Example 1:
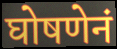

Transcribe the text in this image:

घोषणेनं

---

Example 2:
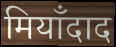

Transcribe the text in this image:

मियाँदाद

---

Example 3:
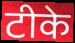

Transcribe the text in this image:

टीके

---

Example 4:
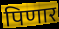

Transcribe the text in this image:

पिणार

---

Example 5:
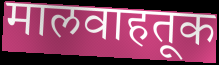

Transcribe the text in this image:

मालवाहतूक